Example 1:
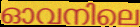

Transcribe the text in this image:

ഓവനിലെ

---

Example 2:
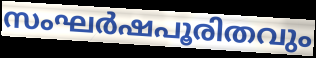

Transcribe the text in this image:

സംഘർഷപൂരിതവും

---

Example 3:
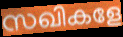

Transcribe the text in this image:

സഖികളേ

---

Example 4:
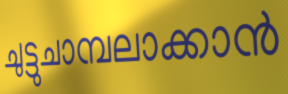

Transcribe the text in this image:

ചുട്ടുചാമ്പലാക്കാൻ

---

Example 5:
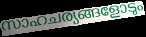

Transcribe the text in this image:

സാഹചര്യങ്ങളോടും